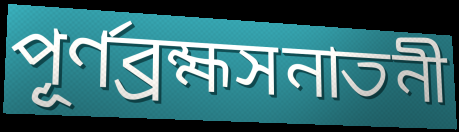
পূর্ণব্রহ্মসনাতনী